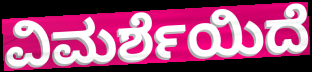
ವಿಮರ್ಶೆಯಿದೆ